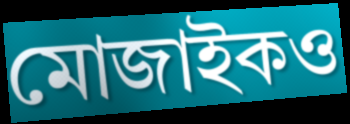
মোজাইকও